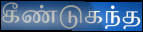
கீண்டுகந்த